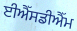
ਈਐੱਸਡੀਐੱਮ